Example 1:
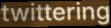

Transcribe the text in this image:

twittering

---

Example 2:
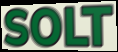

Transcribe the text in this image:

SOLT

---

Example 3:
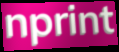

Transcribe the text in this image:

nprint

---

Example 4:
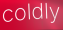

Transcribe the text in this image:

coldly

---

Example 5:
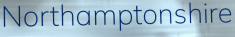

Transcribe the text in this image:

Northamptonshire